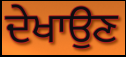
ਦੇਖਾਉਣ